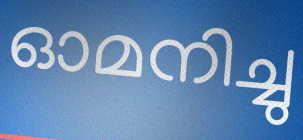
ഓമനിച്ചു